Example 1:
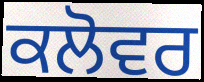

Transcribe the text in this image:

ਕਲੋਵਰ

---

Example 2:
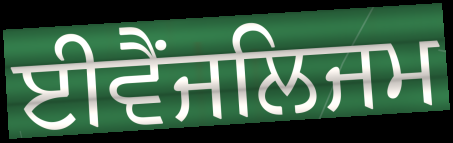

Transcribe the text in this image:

ਈਵੈਂਜਲਿਜਮ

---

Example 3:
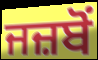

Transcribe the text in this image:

ਜਜ਼ਬੋਂ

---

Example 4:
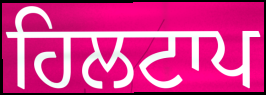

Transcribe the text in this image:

ਹਿਲਟਾਪ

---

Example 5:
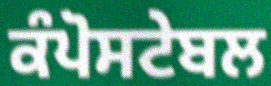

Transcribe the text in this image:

ਕੰਪੋਸਟੇਬਲ